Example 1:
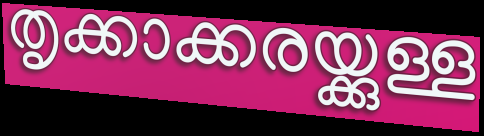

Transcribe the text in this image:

തൃക്കാക്കരയ്ക്കുള്ള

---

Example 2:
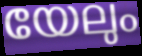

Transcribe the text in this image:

യേലും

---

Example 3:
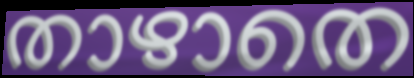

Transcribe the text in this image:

താഴാതെ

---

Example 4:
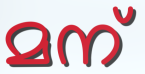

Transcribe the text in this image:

മന്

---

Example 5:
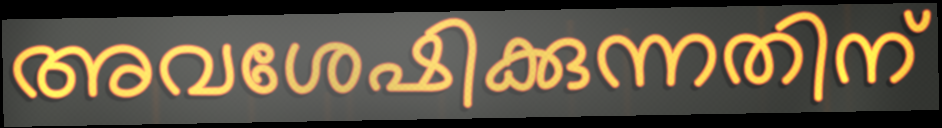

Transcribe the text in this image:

അവശേഷിക്കുന്നതിന്